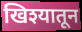
खिश्यातून